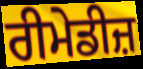
ਰੀਮੇਡੀਜ਼